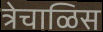
त्रेचाळिस